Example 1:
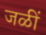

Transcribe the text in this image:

जळीं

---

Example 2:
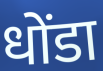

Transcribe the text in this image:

धोंडा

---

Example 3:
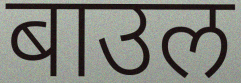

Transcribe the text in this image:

बाउल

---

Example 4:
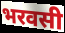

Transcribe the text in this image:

भरवसी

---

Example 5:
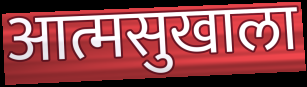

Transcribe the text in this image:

आत्मसुखाला